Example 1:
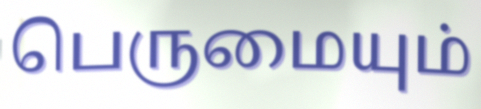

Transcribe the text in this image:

பெருமையும்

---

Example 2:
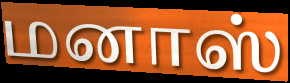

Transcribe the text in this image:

மனாஸ்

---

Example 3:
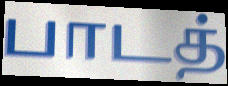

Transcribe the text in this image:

பாடத்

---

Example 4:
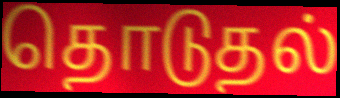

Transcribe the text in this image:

தொடுதல்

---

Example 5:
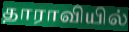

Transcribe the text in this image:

தாராவியில்